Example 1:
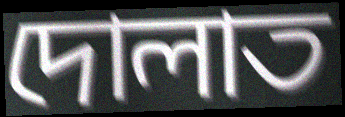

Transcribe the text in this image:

দোলাত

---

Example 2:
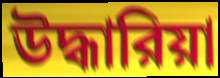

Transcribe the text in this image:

উদ্ধারিয়া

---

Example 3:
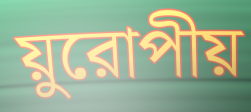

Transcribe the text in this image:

য়ুরোপীয়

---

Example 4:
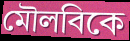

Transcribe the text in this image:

মৌলবিকে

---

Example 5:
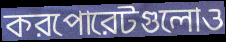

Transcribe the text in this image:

করপোরেটগুলোও